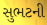
સુભટની